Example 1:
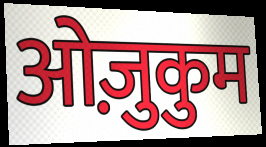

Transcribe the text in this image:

ओज़ुकुम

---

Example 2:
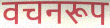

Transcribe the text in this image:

वचनरूप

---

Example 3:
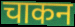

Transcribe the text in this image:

चाकन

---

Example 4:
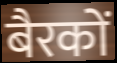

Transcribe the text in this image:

बैरकों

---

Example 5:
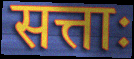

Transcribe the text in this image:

सत्ताः